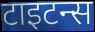
टाइटन्स